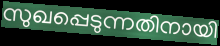
സുഖപ്പെടുന്നതിനായി